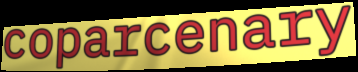
coparcenary